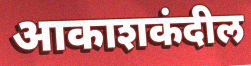
आकाशकंदील